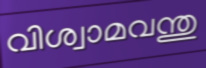
വിശ്വാമവന്തു